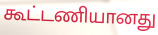
கூட்டணியானது